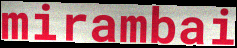
mirambai